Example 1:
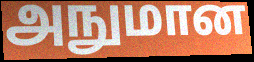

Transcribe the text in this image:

அநுமான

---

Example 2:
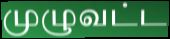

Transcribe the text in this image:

முழுவட்ட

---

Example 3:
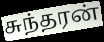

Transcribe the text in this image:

சுந்தரன்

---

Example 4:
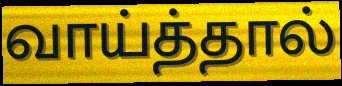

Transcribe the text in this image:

வாய்த்தால்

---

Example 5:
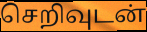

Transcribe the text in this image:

செறிவுடன்